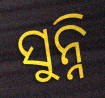
ସୁନ୍ନି